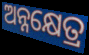
ଅନ୍ନକ୍ଷେତ୍ର